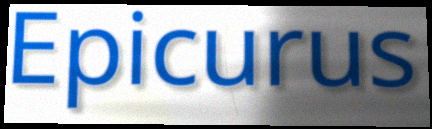
Epicurus